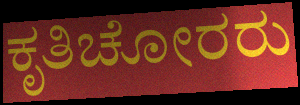
ಕೃತಿಚೋರರು